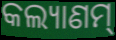
କଲ୍ୟାଣମ୍